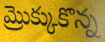
మ్రొక్కుకొన్న